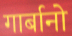
गार्बानो